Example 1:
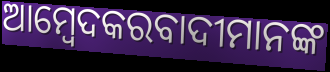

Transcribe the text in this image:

ଆମ୍ବେଦକରବାଦୀମାନଙ୍କ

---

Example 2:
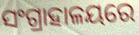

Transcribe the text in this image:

ସଂଗ୍ରାହାଳୟରେ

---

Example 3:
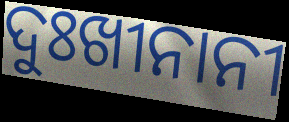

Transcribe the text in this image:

ଦୁଃଖୀନାନୀ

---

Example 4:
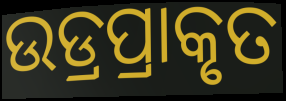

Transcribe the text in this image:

ଉଡ୍ରପ୍ରାକୃତ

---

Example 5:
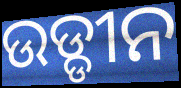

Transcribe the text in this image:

ଉଡ୍ଡୀନ